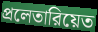
প্রলেতারিয়েত